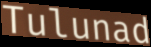
Tulunad